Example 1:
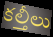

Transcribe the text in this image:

కల్తీలు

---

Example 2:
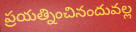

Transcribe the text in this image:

ప్రయత్నించినందువల్ల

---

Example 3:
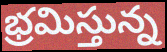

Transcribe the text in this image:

భ్రమిస్తున్న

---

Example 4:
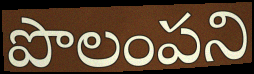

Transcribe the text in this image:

పొలంపని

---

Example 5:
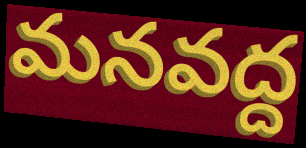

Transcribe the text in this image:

మనవద్ద